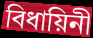
বিধায়িনী